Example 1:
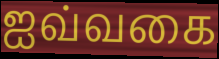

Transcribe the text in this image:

ஐவ்வகை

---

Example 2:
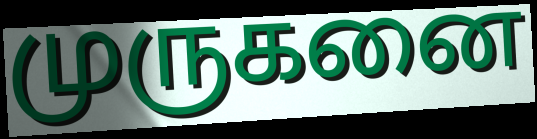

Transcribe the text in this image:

முருகனை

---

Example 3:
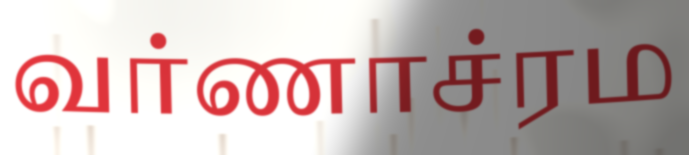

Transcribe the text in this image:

வர்ணாச்ரம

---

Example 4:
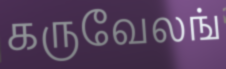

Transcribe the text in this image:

கருவேலங்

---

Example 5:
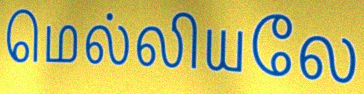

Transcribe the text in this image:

மெல்லியலே